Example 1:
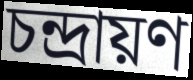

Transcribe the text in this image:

চন্দ্রায়ণ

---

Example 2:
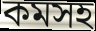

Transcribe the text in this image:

কমসহ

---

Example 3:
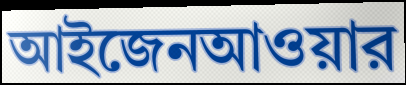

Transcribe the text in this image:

আইজেনআওয়ার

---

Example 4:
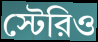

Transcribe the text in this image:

স্টেরিও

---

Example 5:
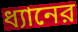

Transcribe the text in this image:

ধ্যানের